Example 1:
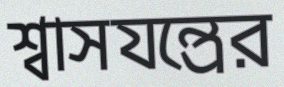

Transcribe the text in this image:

শ্বাসযন্ত্রের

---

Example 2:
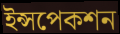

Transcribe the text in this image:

ইন্সপেকশন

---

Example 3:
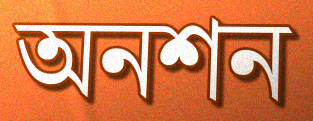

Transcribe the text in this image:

অনশন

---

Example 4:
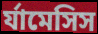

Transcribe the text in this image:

র্যামেসিস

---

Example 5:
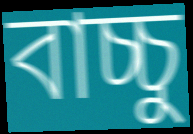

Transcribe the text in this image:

বাচ্চু